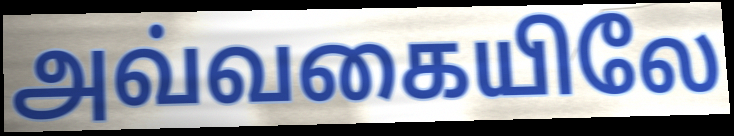
அவ்வகையிலே